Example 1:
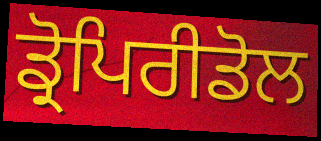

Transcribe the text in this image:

ਡ੍ਰੋਪਿਰੀਡੋਲ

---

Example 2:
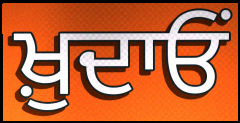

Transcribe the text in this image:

ਖ਼ੁਦਾਓਂ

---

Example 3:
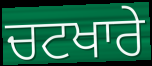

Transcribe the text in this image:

ਚਟਖਾਰੇ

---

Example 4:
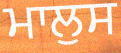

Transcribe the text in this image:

ਮਾਲੁਸ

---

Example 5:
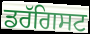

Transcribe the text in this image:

ਡਰੱਗਿਸਟ